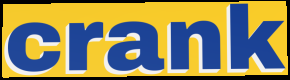
crank